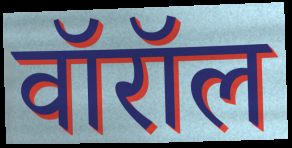
वॉरॉल